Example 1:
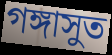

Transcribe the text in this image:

গঙ্গাসুত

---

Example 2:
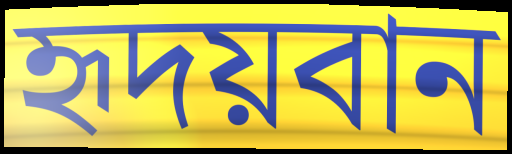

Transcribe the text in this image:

হৃদয়বান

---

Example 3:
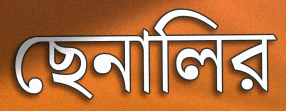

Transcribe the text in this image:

ছেনালির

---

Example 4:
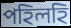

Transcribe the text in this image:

পহিলহি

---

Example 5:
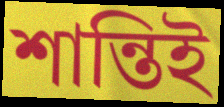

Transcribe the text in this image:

শান্তিই